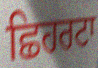
ਛਿਹਰਟਾ